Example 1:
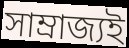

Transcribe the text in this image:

সাম্ৰাজ্যই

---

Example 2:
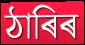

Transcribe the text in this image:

ঠাৰিৰ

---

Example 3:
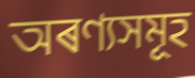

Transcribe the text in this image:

অৰণ্যসমূহ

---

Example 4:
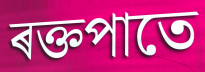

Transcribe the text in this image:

ৰক্তপাতে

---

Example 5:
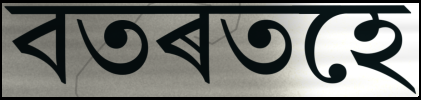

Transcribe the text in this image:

বতৰতহে